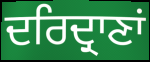
ਦਰਿਦ੍ਰਾਣਾਂ